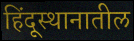
हिंदूस्थानातील